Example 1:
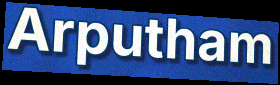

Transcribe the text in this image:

Arputham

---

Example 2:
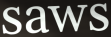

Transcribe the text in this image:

saws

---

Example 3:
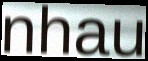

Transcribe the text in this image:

nhau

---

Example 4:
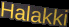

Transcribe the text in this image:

Halakki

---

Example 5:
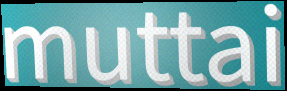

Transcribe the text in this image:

muttai